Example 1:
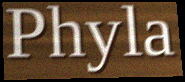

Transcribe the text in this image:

Phyla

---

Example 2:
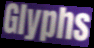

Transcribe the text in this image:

Glyphs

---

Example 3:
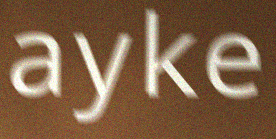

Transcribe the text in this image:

ayke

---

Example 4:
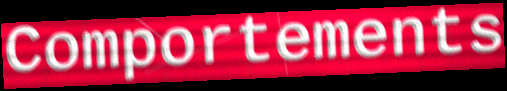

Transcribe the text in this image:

Comportements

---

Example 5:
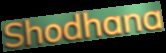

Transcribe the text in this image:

Shodhana